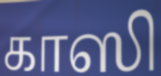
காஸி